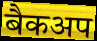
बैकअप